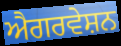
ਐਗਰਵੇਸ਼ਨ